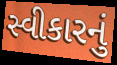
સ્વીકારનું